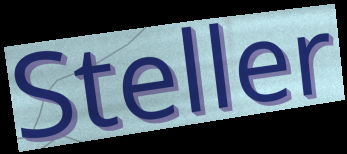
Steller